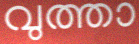
വുത്താ